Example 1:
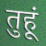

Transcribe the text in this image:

तुहूं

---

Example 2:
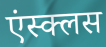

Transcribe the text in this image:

एंस्क्लस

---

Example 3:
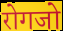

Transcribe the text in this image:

रोगजो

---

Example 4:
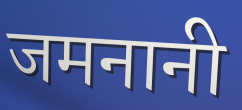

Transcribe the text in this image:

जमनानी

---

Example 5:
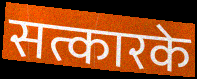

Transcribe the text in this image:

सत्कारके